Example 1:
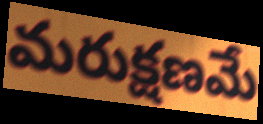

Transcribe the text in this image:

మరుక్షణమే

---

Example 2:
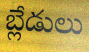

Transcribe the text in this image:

బ్లేడులు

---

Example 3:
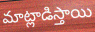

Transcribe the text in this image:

మాట్లాడిస్తాయి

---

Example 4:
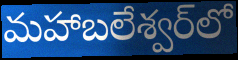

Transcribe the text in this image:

మహాబలేశ్వర్‌లో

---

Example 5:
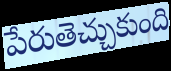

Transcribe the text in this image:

పేరుతెచ్చుకుంది